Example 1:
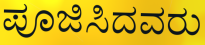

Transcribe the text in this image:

ಪೂಜಿಸಿದವರು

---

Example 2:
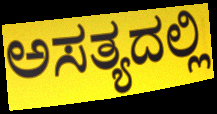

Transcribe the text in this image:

ಅಸತ್ಯದಲ್ಲಿ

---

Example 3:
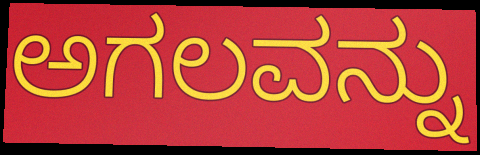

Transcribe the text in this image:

ಅಗಲವನ್ನು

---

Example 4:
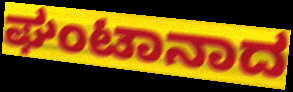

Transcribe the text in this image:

ಘಂಟಾನಾದ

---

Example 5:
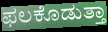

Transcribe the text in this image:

ಫಲಕೊಡುತ್ತಾ